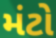
મંટો